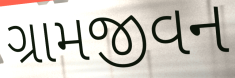
ગ્રામજીવન